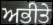
ਅਭੀਤੇ